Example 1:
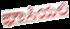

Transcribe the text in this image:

ಘಾಸಿಯಲಿ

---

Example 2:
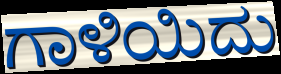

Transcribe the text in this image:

ಗಾಳಿಯಿದು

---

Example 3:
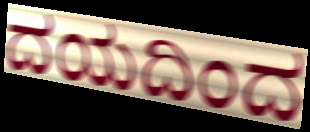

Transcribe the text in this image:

ದಯದಿಂದ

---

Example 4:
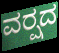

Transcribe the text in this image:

ವರ್‍ಷದ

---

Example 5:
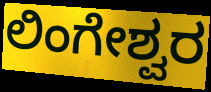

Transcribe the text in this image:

ಲಿಂಗೇಶ್ವರ